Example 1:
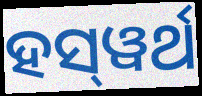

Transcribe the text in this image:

ହସ୍‌ୱର୍ଥ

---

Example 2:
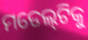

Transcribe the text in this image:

ମଡେଲ୍‌ଟିକୁ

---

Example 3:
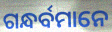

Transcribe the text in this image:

ଗନ୍ଧର୍ବମାନେ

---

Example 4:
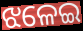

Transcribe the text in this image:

ଝଳେଇ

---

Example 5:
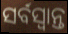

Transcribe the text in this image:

ସର୍ବସ୍ୱାନ୍ତ